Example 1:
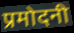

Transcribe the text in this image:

प्रमोदनी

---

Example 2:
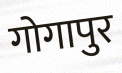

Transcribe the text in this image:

गोगापुर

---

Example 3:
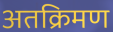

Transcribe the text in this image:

अतक्रिमण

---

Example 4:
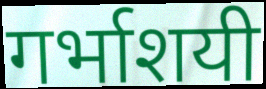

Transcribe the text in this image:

गर्भाशयी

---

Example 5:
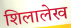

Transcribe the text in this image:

शिलालेख